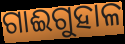
ଗାଈଗୁହାଳ